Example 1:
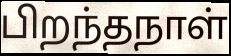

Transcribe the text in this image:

பிறந்தநாள்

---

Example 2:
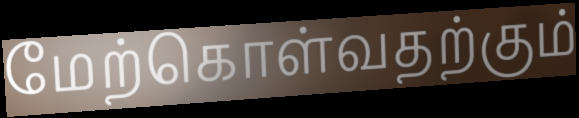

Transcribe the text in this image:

மேற்கொள்வதற்கும்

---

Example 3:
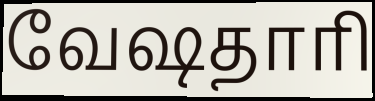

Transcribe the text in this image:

வேஷதாரி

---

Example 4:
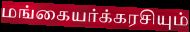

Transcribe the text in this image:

மங்கையர்க்கரசியும்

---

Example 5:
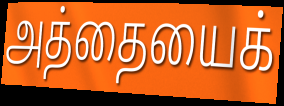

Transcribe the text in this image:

அத்தையைக்